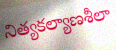
నిత్యకల్యాణశీలా